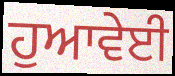
ਹੁਆਵੇਈ